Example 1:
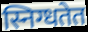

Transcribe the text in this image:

स्निग्धतेत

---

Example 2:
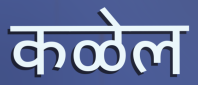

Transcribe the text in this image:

कळेल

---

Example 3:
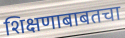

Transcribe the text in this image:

शिक्षणाबाबतचा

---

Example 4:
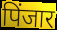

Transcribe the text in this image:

पिंजार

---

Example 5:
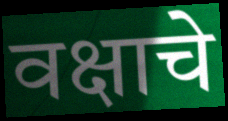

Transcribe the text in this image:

वक्षाचे